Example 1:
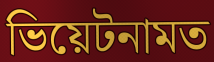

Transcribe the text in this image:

ভিয়েটনামত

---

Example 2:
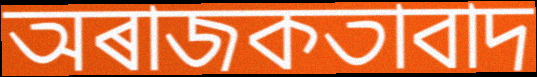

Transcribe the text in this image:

অৰাজকতাবাদ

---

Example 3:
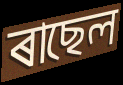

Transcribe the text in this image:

ৰাছেল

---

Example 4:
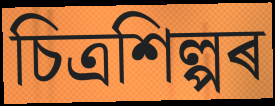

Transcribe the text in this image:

চিত্ৰশিল্পৰ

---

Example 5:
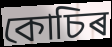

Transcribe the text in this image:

কোচিৰ